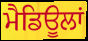
ਮੈਡਿਊਲਾਂ